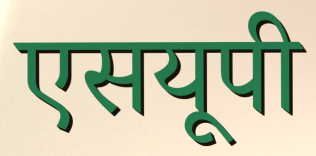
एसयूपी